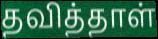
தவித்தாள்